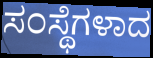
ಸಂಸ್ಥೆಗಳಾದ